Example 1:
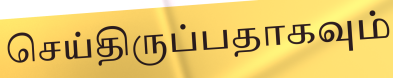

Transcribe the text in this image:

செய்திருப்பதாகவும்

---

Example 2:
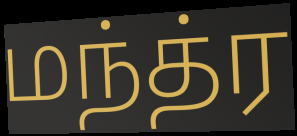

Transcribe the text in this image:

மந்த்ர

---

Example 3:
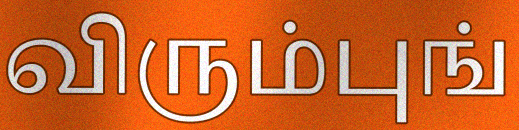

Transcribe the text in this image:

விரும்புங்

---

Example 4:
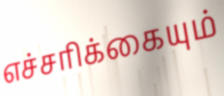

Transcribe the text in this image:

எச்சரிக்கையும்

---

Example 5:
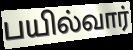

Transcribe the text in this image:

பயில்வார்